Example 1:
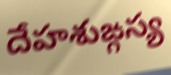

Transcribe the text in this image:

దేహశుఙ్గస్య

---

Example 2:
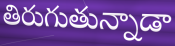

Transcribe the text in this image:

తిరుగుతున్నాడా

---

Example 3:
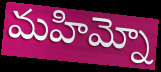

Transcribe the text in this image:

మహిమ్నో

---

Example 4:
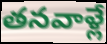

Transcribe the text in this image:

తనవాళ్లే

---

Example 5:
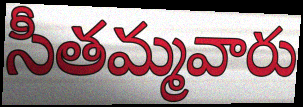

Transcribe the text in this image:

సీతమ్మవారు